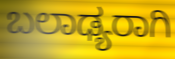
ಬಲಾಢ್ಯರಾಗಿ